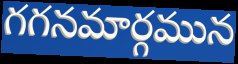
గగనమార్గమున